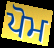
ਪੋਮ